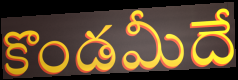
కొండమీదే